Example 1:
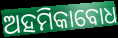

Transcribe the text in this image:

ଅହମିକାବୋଧ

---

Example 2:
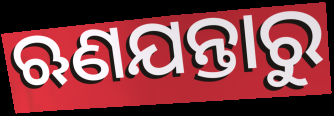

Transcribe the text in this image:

ଋଣଯନ୍ତାରୁ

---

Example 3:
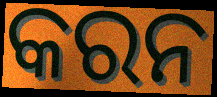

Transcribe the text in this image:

କରନ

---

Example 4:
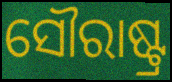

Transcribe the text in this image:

ସୌରାଷ୍ଟ୍ର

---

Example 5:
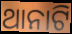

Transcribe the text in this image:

ଥାନାଟି